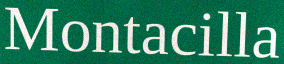
Montacilla